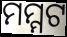
ମମ୍ମଟ